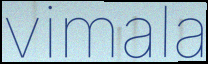
vimala